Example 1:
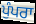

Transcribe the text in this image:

ਪੁੰਪਰਾ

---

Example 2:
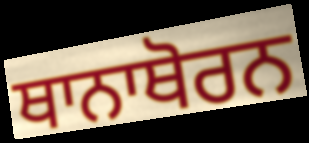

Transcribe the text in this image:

ਥਾਨਾਥੋਰਨ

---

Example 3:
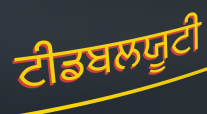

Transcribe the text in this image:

ਟੀਡਬਲਯੂਟੀ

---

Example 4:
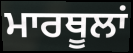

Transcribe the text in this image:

ਮਾਰਥੂਲਾਂ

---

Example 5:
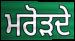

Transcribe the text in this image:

ਮਰੋੜਦੇ